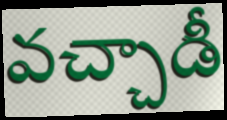
వచ్చాడీ